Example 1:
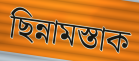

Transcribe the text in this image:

ছিন্নামস্তাক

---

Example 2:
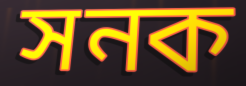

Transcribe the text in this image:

সনক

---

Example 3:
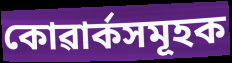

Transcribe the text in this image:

কোৱাৰ্কসমূহক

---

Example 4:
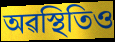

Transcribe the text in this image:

অৱস্থিতিও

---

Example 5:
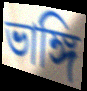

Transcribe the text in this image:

ভাঙ্গি